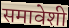
समावेशी